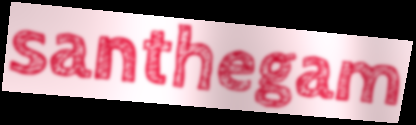
santhegam